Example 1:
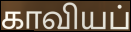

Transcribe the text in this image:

காவியப்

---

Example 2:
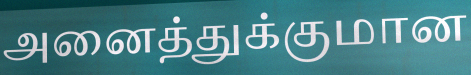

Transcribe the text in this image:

அனைத்துக்குமான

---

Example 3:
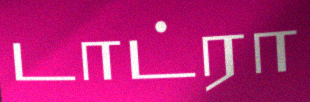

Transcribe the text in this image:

டாட்ரா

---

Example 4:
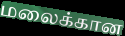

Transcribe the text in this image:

மலைக்கான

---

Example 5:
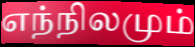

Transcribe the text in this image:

எந்நிலமும்